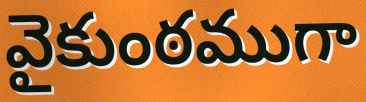
వైకుంఠముగా